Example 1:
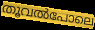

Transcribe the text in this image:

തൂവൽപോലെ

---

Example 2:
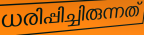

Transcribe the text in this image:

ധരിപ്പിച്ചിരുന്നത്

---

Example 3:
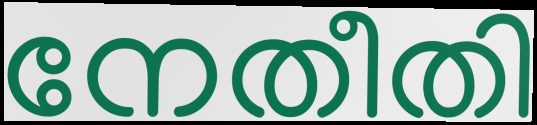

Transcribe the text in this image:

നേതീതി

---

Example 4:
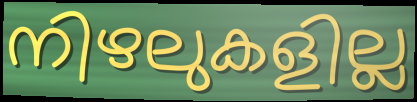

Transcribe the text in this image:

നിഴലുകളില്ല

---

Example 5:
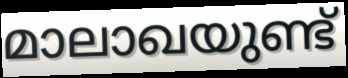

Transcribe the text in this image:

മാലാഖയുണ്ട്